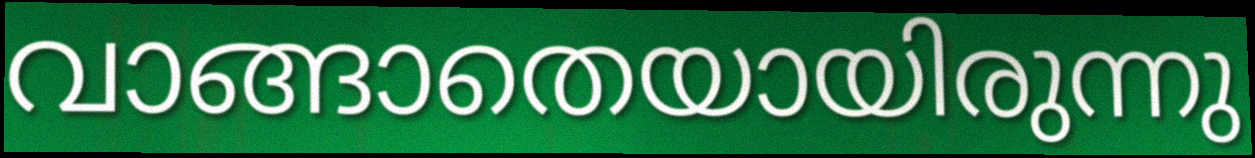
വാങ്ങാതെയായിരുന്നു